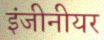
इंजीनीयर